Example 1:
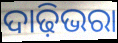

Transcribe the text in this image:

ଦାଢ଼ିଭରା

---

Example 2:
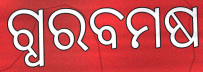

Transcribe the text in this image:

ଗ୍ଧରବମଷ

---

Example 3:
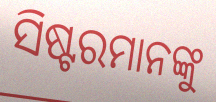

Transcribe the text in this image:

ସିଷ୍ଟରମାନଙ୍କୁ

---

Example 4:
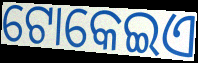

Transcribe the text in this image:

ଟୋକେଇଏ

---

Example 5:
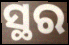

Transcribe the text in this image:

ସ୍ଥର